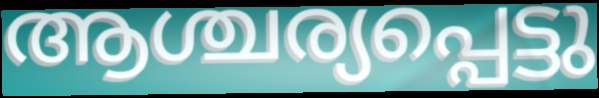
ആശ്ചര്യപ്പെട്ടു